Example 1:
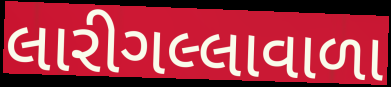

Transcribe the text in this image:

લારીગલ્લાવાળા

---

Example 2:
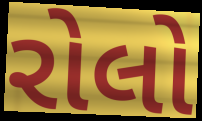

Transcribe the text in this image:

રોલો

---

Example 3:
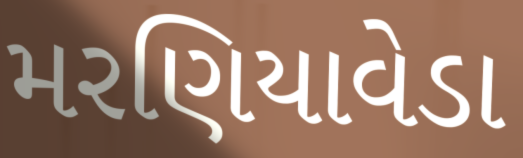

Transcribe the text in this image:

મરણિયાવેડા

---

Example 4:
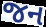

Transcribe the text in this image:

જન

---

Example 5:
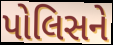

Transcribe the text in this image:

પોલિસને